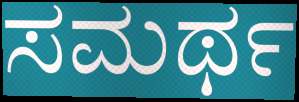
ಸಮರ್ಥ